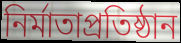
নির্মাতাপ্রতিষ্ঠান